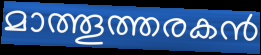
മാത്തൂത്തരകൻ